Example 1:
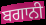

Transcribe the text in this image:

ਬਗਾਨੀ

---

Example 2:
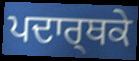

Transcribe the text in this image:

ਪਦਾਰ੍ਥਕੇ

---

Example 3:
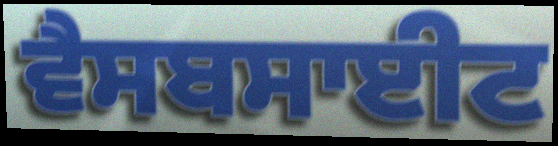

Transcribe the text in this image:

ਵੈਸਬਸਾਈਟ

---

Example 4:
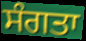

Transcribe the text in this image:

ਸੰਗਤਾ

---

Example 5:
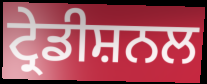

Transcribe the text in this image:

ਟ੍ਰੇਡੀਸ਼ਨਲ